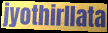
jyothirllata